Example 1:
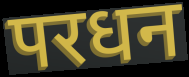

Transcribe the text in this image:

परधन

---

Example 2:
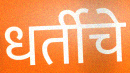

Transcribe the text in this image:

धर्तीचे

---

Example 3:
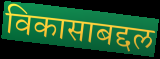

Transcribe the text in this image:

विकासाबद्दल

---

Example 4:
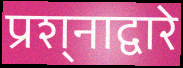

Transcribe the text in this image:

प्रश्नाद्वारे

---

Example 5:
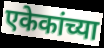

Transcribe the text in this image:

एकेकांच्या